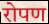
रोपण